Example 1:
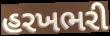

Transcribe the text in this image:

હરખભરી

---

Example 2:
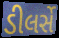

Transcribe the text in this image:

ડીલર્સે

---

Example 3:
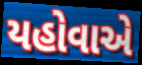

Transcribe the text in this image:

યહોવાએ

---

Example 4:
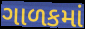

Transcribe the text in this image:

ગાળકમાં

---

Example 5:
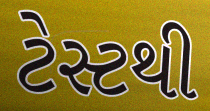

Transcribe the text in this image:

ટેસ્ટથી